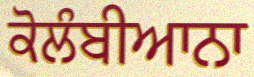
ਕੋਲੰਬੀਆਨਾ